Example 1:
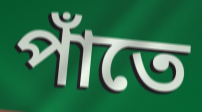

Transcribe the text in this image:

পাঁতে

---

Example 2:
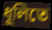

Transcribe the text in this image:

ধূলিতে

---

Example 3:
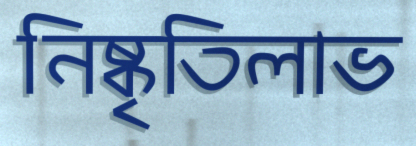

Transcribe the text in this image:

নিষ্কৃতিলাভ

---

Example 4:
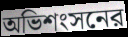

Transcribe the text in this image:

অভিশংসনের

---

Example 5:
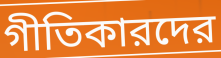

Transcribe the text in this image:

গীতিকারদের